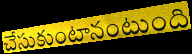
చేసుకుంటానంటుంది